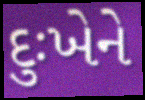
દુઃખેને